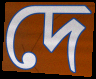
দে